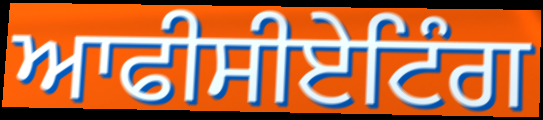
ਆਫੀਸੀਏਟਿੰਗ